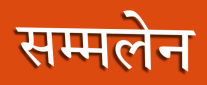
सम्मलेन